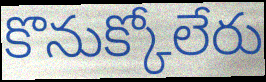
కొనుక్కోలేరు